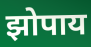
झोपाय